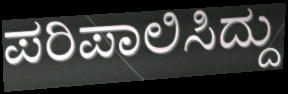
ಪರಿಪಾಲಿಸಿದ್ದು